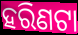
ହରିଣଟା